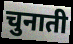
चुनाती